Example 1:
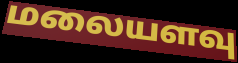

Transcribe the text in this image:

மலையளவு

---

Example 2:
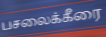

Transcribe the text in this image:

பசலைக்கீரை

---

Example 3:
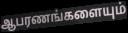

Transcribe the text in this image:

ஆபரணங்களையும்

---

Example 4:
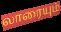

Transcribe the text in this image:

லாரையும்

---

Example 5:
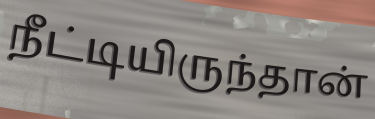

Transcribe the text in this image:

நீட்டியிருந்தான்